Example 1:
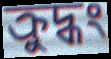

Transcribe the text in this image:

ক্রুদ্ধং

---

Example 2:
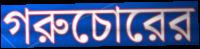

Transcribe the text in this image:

গরুচোরের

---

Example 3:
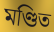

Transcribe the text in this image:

মণ্ডিত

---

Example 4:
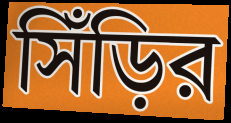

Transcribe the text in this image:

সিঁড়ির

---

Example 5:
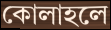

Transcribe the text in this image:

কোলাহলে